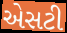
એસટી